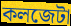
কলজেটা